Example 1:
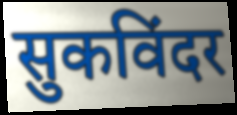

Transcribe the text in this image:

सुकविंदर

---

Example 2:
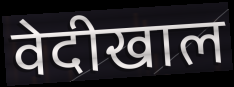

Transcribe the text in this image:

वेदीखाल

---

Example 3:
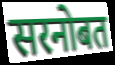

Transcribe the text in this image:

सरनोबत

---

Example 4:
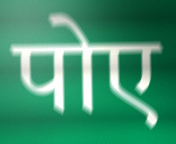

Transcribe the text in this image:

पोए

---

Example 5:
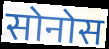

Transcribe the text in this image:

सोनोस